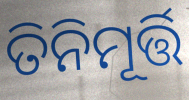
ତିନିମୂର୍ତ୍ତି